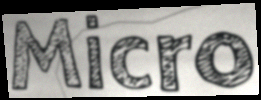
Micro